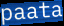
paata